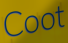
Coot